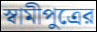
স্বামীপুত্রের